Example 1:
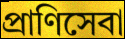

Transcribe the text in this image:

প্রাণিসেবা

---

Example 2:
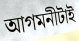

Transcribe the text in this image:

আগমনীটাই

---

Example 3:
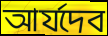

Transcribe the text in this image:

আর্যদেব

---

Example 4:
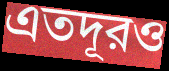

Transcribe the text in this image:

এতদূরও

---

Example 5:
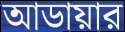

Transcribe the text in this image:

আডায়ার